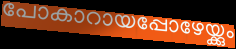
പോകാറായപ്പോഴേയ്ക്കും